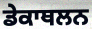
ਡੇਕਾਥਲਨ